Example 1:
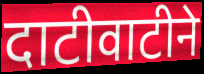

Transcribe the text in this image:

दाटीवाटीने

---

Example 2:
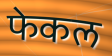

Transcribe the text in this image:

फेकल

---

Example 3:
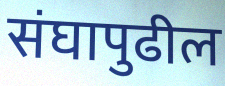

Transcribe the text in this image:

संघापुढील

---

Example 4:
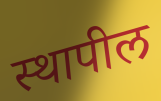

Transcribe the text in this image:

स्थापील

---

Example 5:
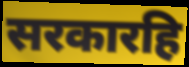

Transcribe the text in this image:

सरकारहि